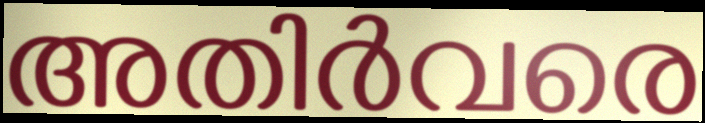
അതിർവരെ